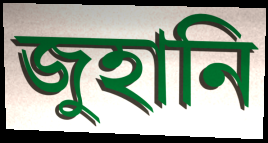
জুহানি